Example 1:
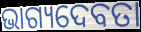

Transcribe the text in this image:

ଭାଗ୍ୟଦେବତା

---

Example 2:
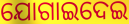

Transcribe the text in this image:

ଯୋଗାଇଦେଇ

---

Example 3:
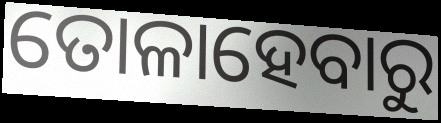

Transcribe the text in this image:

ତୋଳାହେବାରୁ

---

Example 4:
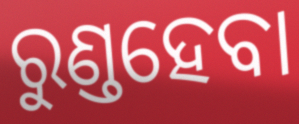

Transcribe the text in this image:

ରୁଣ୍ଡହେବା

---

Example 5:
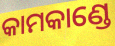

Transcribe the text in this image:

କାମକାଣ୍ଡେ